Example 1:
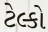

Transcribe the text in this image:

ટેલ્કો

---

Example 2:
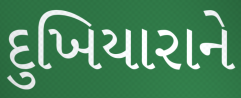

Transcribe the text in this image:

દુખિયારાને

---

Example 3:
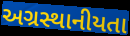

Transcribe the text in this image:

અગ્રસ્થાનીયતા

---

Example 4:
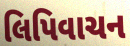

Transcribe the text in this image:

લિપિવાચન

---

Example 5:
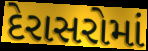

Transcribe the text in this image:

દેરાસરોમાં